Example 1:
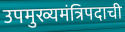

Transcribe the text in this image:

उपमुख्यमंत्रिपदाची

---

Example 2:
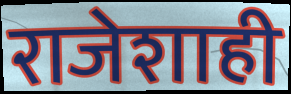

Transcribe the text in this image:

राजेशाही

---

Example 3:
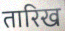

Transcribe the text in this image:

तारिख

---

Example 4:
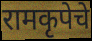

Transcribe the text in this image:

रामकृपेचे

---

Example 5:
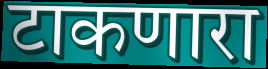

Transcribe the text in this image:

टाकणारा